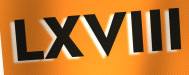
LXVIII